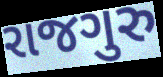
રાજગુરુ